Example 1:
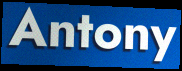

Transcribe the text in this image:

Antony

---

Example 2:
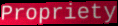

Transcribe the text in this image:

Propriety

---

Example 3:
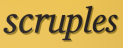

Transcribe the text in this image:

scruples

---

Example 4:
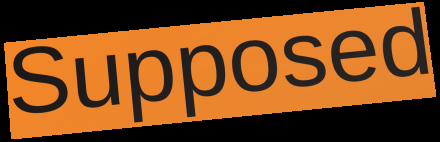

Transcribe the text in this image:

Supposed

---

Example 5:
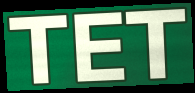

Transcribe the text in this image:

TET